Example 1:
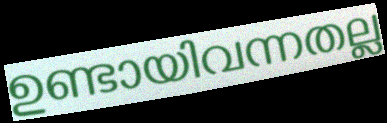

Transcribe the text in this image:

ഉണ്ടായിവന്നതല്ല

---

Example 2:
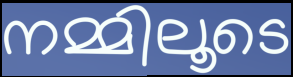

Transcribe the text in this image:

നമ്മിലൂടെ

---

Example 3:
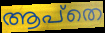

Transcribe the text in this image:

ആപ്‌തെ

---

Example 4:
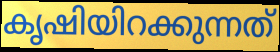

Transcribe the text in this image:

കൃഷിയിറക്കുന്നത്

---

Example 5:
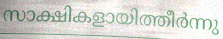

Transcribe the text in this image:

സാക്ഷികളായിത്തീർന്നു